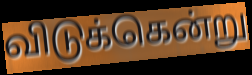
விடுக்கென்று